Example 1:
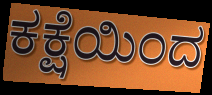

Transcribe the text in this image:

ಕಕ್ಷೆಯಿಂದ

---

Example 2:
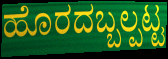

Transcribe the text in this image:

ಹೊರದಬ್ಬಲ್ಪಟ್ಟ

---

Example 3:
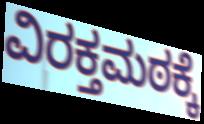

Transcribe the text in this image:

ವಿರಕ್ತಮಠಕ್ಕೆ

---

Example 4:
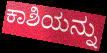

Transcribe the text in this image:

ಕಾಶಿಯನ್ನು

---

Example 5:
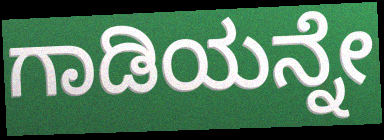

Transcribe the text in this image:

ಗಾಡಿಯನ್ನೇ